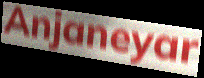
Anjaneyar